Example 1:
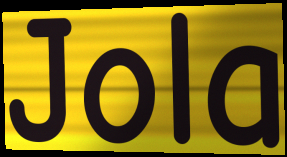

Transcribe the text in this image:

Jola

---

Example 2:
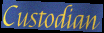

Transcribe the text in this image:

Custodian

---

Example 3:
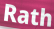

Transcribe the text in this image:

Rath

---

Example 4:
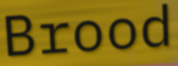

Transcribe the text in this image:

Brood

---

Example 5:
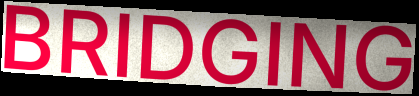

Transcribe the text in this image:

BRIDGING